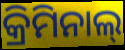
କ୍ରିମିନାଲ୍